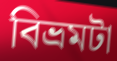
বিভ্রমটা